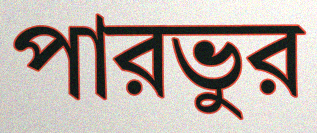
পারভুর